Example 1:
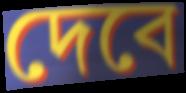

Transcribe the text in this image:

দেবে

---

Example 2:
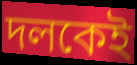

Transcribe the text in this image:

দলকেই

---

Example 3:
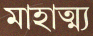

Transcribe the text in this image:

মাহাত্ম্য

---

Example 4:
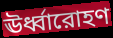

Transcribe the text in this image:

ঊর্ধ্বারোহণ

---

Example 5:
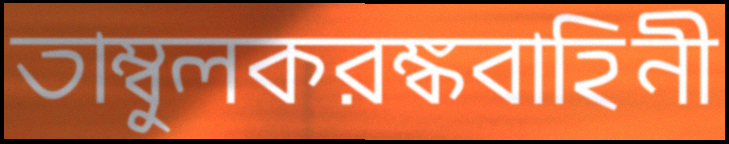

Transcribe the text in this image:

তাম্বুলকরঙ্কবাহিনী